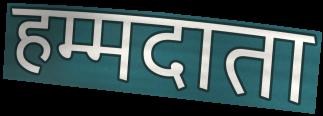
हम्मदाता